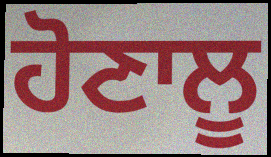
ਹੋਣਾਲੂ